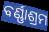
ବର୍ଣ୍ଣାଶ୍ରମ